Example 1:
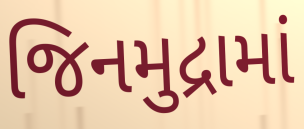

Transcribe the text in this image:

જિનમુદ્રામાં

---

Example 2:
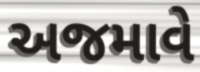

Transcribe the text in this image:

અજમાવે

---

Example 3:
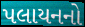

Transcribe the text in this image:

પલાયનનો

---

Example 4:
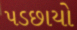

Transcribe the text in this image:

પડછાયો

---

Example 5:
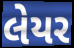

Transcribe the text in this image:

લેયર